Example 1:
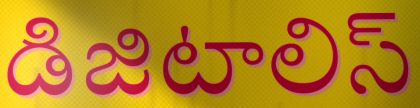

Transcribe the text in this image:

డిజిటాలిస్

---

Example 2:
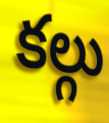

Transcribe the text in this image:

కల్గు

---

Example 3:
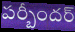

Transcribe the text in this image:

పర్బీందర్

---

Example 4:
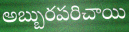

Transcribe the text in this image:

అబ్బురపరిచాయి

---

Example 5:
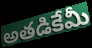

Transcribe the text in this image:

అతడికేమీ